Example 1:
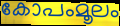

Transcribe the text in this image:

കോപംമൂലം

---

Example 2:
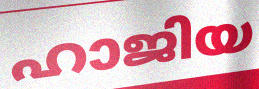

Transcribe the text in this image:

ഹാജിയ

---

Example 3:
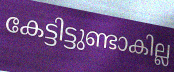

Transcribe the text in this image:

കേട്ടിട്ടുണ്ടാകില്ല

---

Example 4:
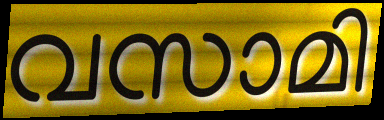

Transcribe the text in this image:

വസാമി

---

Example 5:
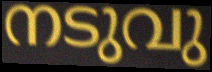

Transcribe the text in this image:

നടുവു